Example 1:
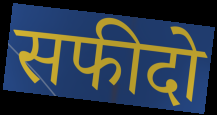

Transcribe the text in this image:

सफीदो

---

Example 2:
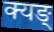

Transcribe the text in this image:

क्यङ्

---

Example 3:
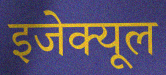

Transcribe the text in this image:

इजेक्यूल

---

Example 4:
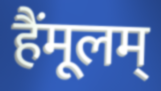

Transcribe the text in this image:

हैंमूलम्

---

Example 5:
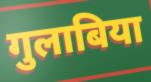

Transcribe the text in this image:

गुलाबिया